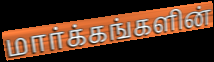
மார்க்கங்களின்